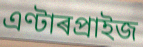
এণ্টাৰপ্ৰাইজ